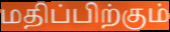
மதிப்பிற்கும்